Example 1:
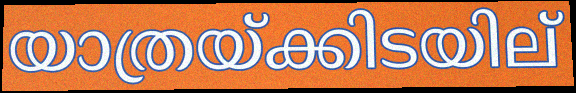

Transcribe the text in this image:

യാത്രയ്ക്കിടയില്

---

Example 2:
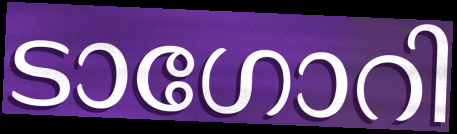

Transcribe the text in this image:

ടാഗോറി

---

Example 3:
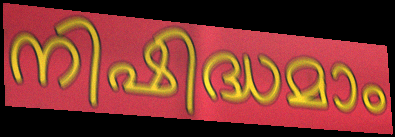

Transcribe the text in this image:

നിഷിദ്ധമാം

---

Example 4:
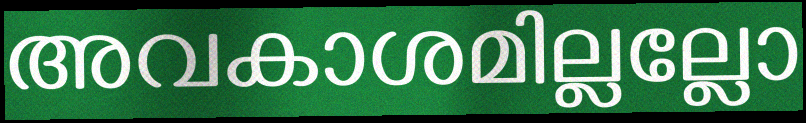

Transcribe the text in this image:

അവകാശമില്ലല്ലോ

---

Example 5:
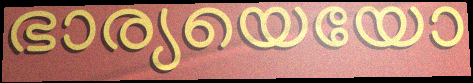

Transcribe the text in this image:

ഭാര്യയെയോ